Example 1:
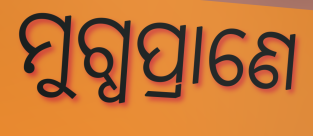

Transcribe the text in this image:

ମୁଗ୍ଧପ୍ରାଣେ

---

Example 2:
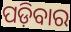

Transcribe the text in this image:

ପଡ଼ିବାର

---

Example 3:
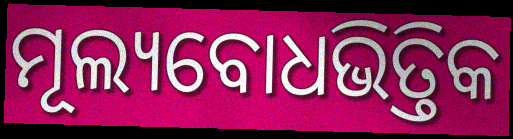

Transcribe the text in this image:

ମୂଲ୍ୟବୋଧଭିତ୍ତିକ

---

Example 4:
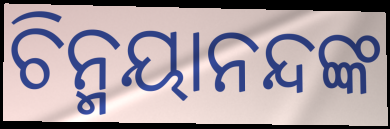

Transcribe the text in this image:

ଚିନ୍ମୟାନନ୍ଦଙ୍କ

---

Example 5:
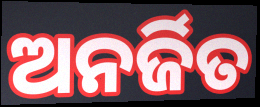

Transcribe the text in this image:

ଅନର୍ଜିତ